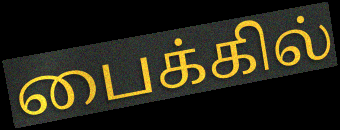
பைக்கில்